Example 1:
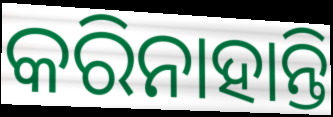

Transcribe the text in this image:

କରିନାହାନ୍ତି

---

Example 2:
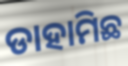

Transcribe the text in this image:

ଡାହାମିଛ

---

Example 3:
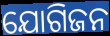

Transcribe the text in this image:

ଯୋଗିଜନ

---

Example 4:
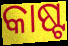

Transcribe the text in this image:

କାଷ୍ଟ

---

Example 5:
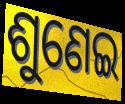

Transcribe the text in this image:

ଶୁଣେଇ